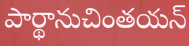
పార్థానుచింతయన్